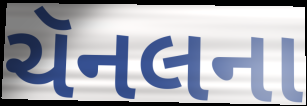
ચૅનલના